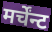
मर्चेंन्ट